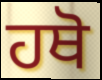
ਹਥੋ